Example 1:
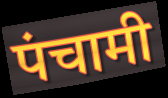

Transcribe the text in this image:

पंचामी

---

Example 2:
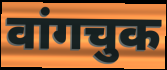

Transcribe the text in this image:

वांगचुक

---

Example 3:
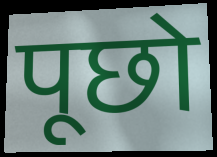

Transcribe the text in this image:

पूछो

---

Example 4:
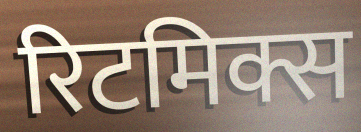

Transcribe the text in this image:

रिटमिक्स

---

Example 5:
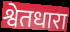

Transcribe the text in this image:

श्वेतधारा